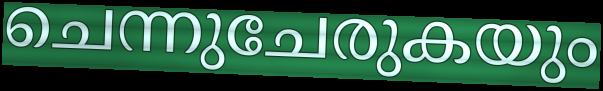
ചെന്നുചേരുകയും